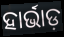
ହାର୍ଭାଡ଼